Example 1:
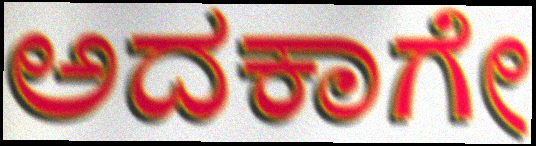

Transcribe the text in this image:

ಅದಕಾಗೇ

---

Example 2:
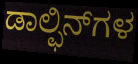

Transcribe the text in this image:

ಡಾಲ್ಫಿನ್‌ಗಳ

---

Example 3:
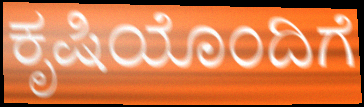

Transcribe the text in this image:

ಕೃಷಿಯೊಂದಿಗೆ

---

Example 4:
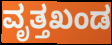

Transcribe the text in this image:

ವೃತ್ತಖಂಡ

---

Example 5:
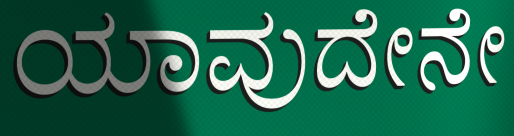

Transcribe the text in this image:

ಯಾವುದೇನೇ